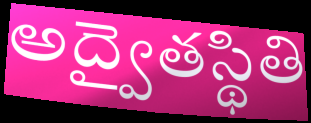
అద్వైతస్థితి